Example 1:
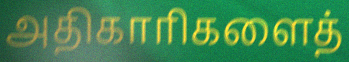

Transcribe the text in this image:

அதிகாரிகளைத்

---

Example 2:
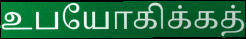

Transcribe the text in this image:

உபயோகிக்கத்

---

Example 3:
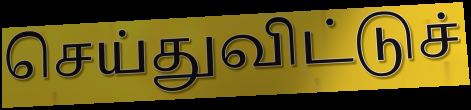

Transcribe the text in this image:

செய்துவிட்டுச்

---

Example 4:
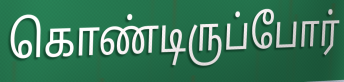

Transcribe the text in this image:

கொண்டிருப்போர்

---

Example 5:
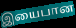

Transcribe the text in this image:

இயைபான